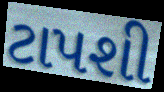
ટાપશી